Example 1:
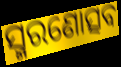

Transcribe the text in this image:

ସ୍ମରଣୋତ୍ସବ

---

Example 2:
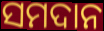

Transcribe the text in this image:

ସମଦାନ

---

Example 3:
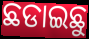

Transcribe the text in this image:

ଛଡାଇଛୁ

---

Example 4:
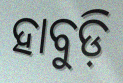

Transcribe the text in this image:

ହାବୁଡ଼ି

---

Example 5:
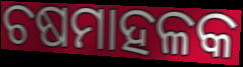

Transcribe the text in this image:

ଚଷମାହଳକ